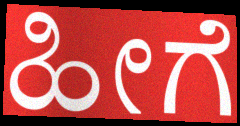
ಹೀಗೆ